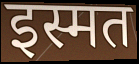
इस्मत